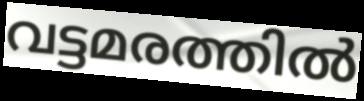
വട്ടമരത്തിൽ